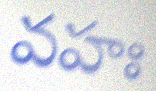
వహః